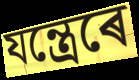
যন্ত্ৰেৰে